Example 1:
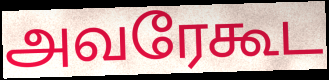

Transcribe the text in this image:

அவரேகூட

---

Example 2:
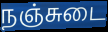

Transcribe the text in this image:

நஞ்சுடை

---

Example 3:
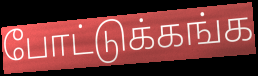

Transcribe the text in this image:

போட்டுக்கங்க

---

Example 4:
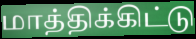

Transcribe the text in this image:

மாத்திக்கிட்டு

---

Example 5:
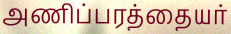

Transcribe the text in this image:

அணிப்பரத்தையர்